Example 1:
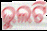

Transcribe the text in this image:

ଭୁଲଟି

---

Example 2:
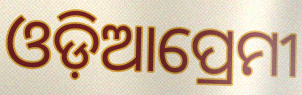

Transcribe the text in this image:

ଓଡ଼ିଆପ୍ରେମୀ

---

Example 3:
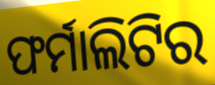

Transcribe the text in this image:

ଫର୍ମାଲିଟିର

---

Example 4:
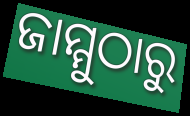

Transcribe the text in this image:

ଜାମ୍ମୁଠାରୁ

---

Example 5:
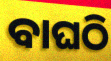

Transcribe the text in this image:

ବାଘଠି